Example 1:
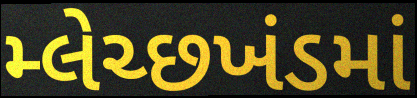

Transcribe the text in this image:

મ્લેચ્છખંડમાં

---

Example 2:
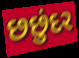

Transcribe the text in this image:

છછુંદર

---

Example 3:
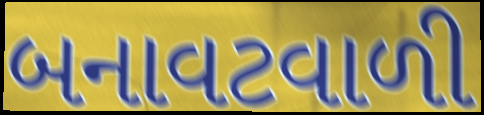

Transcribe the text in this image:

બનાવટવાળી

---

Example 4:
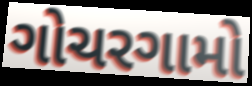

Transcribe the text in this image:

ગોચરગામો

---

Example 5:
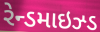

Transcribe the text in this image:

રેન્ડમાઇઝ્ડ